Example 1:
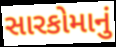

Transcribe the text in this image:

સારકોમાનું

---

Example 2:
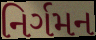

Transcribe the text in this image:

નિર્ગમન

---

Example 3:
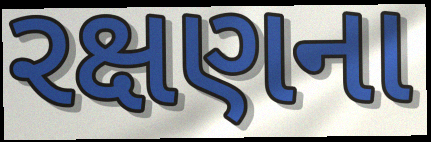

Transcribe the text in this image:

રક્ષણના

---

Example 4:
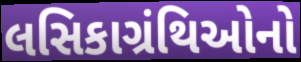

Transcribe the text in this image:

લસિકાગ્રંથિઓનો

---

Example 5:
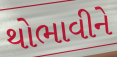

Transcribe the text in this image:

થોભાવીને